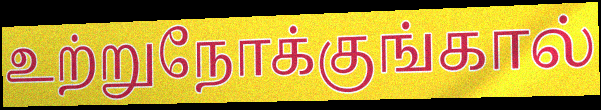
உற்றுநோக்குங்கால்